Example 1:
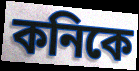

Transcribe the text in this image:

কনিকে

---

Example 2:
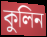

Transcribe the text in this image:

কুলিন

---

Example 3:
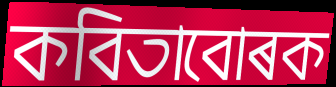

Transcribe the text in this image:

কবিতাবোৰক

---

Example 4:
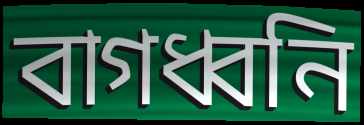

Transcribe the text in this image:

বাগধ্বনি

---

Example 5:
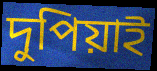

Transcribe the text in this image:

দুপিয়াই